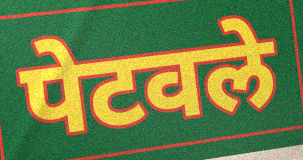
पेटवले